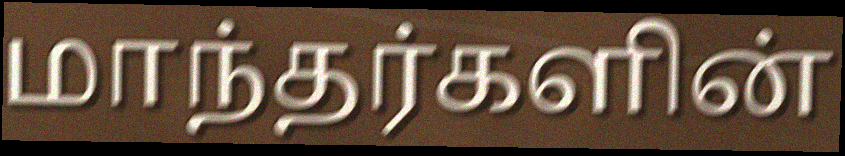
மாந்தர்களின்